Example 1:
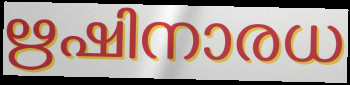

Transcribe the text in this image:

ഋഷിനാരധ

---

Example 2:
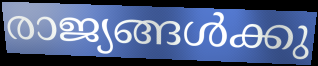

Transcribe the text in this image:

രാജ്യങ്ങൾക്കു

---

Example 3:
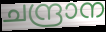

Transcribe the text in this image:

ചന്ദ്രാന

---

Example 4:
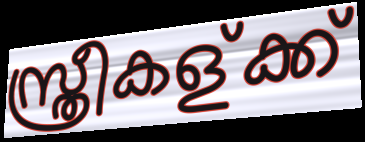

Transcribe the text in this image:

സ്ത്രീകള്ക്ക്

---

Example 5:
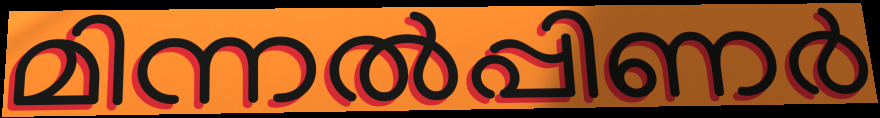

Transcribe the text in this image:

മിന്നൽപ്പിണർ